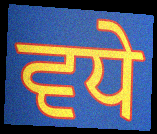
ਵਧੇ